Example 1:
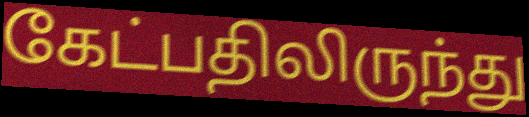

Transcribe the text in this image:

கேட்பதிலிருந்து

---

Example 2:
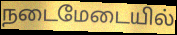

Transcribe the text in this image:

நடைமேடையில்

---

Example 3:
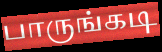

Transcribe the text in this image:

பாருங்கடி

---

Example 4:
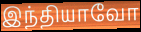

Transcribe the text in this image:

இந்தியாவோ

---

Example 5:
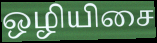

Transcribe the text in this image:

ஒழியிசை